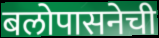
बलोपासनेची